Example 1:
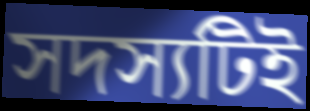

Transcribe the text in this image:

সদস্যটিই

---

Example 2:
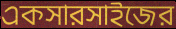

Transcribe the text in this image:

একসারসাইজের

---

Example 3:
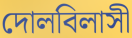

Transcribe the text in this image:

দোলবিলাসী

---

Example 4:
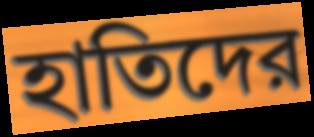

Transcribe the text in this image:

হাতিদের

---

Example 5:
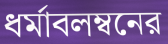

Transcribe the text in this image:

ধর্মাবলম্বনের